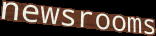
newsrooms